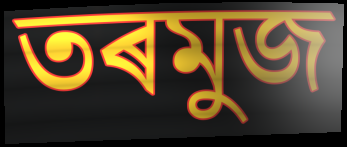
তৰমুজ